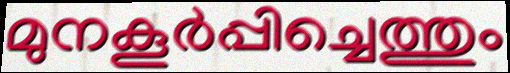
മുനകൂർപ്പിച്ചെത്തും